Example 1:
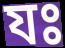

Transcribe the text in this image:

যঃ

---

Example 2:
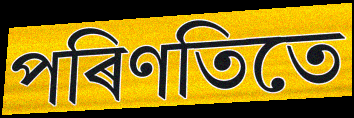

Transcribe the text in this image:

পৰিণতিতে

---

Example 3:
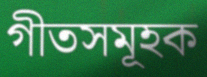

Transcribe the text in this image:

গীতসমূহক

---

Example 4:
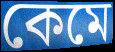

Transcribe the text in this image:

কেমে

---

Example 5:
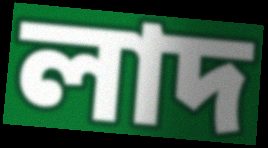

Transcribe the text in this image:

লাদ